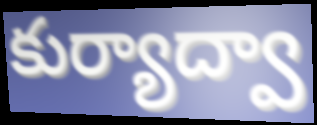
కుర్యాద్వా